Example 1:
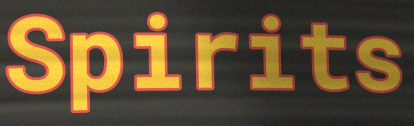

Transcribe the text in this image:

Spirits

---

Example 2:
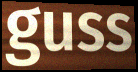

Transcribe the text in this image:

guss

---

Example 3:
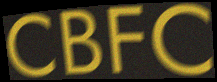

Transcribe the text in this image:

CBFC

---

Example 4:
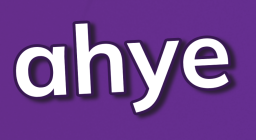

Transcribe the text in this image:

ahye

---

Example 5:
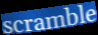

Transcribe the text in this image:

scramble